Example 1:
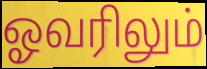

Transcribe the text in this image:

ஓவரிலும்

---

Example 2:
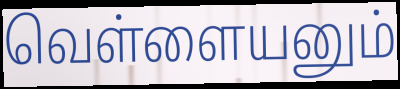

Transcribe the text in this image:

வெள்ளையனும்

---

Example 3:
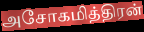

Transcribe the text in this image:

அசோகமித்திரன்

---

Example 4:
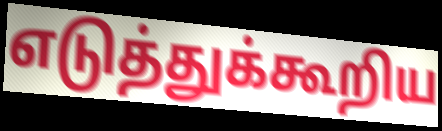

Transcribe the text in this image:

எடுத்துக்கூறிய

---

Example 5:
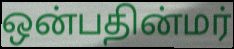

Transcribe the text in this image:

ஒன்பதின்மர்